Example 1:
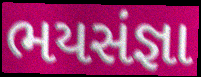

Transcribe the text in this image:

ભયસંજ્ઞા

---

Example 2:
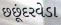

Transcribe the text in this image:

છછૂંદરવેડા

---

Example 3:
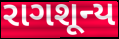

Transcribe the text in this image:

રાગશૂન્ય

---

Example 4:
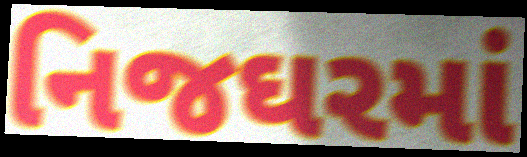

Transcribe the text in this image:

નિજઘરમાં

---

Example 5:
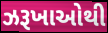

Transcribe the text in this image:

ઝરૂખાઓથી